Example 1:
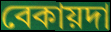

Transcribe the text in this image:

বেকায়দা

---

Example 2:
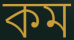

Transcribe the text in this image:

কম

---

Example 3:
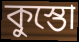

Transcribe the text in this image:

কুস্তো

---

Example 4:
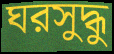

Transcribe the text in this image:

ঘরসুদ্ধু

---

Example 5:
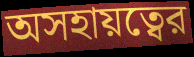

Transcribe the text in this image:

অসহায়ত্বের